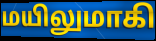
மயிலுமாகி